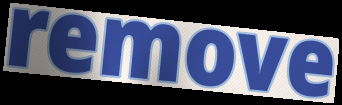
remove